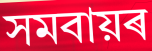
সমবায়ৰ